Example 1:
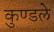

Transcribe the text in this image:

कुण्डले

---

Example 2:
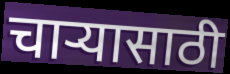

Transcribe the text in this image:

चार्‍यासाठी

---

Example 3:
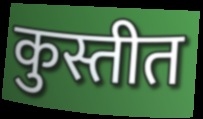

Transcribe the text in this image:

कुस्तीत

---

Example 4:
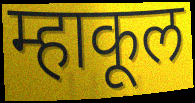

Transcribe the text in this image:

म्हाकूल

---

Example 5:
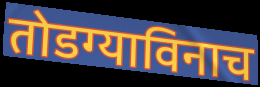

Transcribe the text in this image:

तोडग्याविनाच